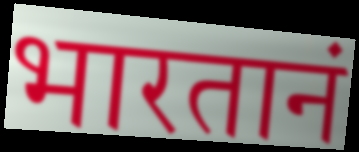
भारतानं